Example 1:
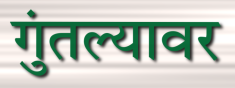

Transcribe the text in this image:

गुंतल्यावर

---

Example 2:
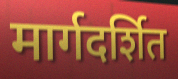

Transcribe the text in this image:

मार्गदर्शित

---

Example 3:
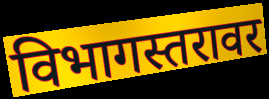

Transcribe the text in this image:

विभागस्तरावर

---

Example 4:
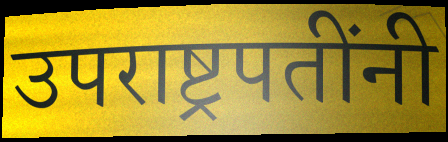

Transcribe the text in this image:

उपराष्ट्रपतींनी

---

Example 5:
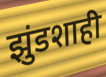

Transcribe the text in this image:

झुंडशाही